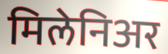
मिलेनिअर